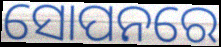
ସୋପନରେ